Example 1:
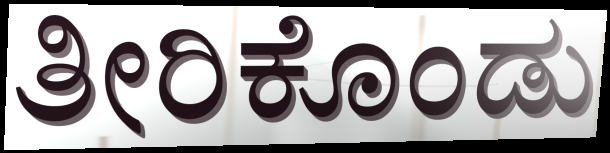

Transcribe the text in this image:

ತೀರಿಕೊಂಡು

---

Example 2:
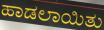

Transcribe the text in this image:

ಹಾಡಲಾಯಿತು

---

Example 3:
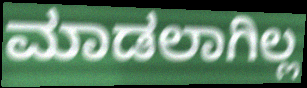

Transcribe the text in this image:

ಮಾಡಲಾಗಿಲ್ಲ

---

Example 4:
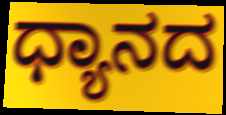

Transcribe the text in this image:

ಧ್ಯಾನದ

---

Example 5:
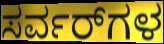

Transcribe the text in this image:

ಸರ್ವರ್‌ಗಳ